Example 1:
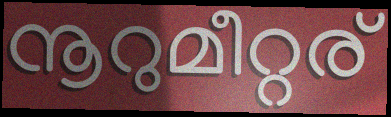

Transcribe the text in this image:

നൂറുമീറ്റര്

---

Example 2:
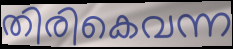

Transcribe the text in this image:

തിരികെവന്ന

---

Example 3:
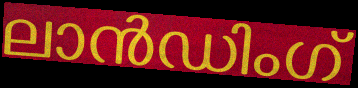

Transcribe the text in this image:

ലാൻഡിംഗ്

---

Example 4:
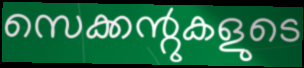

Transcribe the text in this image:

സെക്കന്റുകളുടെ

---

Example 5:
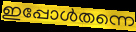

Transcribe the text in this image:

ഇപ്പോൾതന്നെ